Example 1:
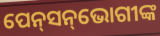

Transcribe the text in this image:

ପେନ୍‌ସନ୍‌ଭୋଗୀଙ୍କ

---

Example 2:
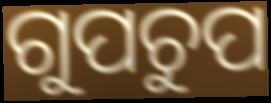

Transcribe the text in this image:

ଗୁପଚୁପ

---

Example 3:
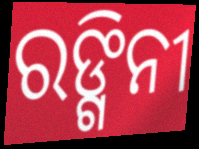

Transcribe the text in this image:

ରଙ୍ଗିନୀ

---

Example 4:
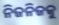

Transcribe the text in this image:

ନିଜନିଜକୁ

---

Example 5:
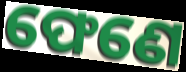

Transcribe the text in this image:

ଫେଣେ